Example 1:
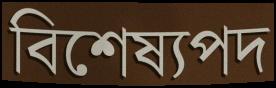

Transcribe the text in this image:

বিশেষ্যপদ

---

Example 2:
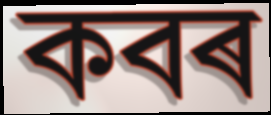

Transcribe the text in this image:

কবৰ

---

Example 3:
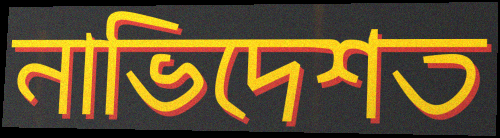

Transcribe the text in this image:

নাভিদেশত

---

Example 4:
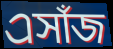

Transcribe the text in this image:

এসাঁজ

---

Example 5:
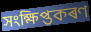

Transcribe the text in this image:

সংক্ষিপ্তকৰণ